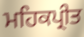
ਮਹਿਕਪ੍ਰੀਤ